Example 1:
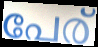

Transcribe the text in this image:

പേര്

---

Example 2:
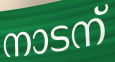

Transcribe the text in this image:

നാടന്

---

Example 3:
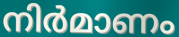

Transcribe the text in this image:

നിർമാണം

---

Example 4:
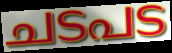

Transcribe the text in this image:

ചടപട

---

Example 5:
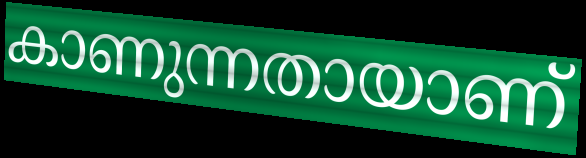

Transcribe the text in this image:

കാണുന്നതായാണ്